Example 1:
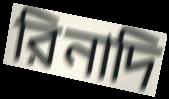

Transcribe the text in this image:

রিনাদি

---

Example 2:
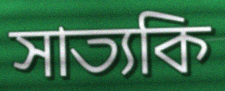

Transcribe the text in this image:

সাত্যকি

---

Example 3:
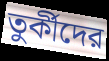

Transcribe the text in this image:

তুর্কীদের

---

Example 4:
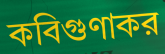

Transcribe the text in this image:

কবিগুণাকর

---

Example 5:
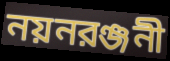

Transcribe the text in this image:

নয়নরঞ্জনী